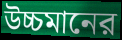
উচ্চমানের